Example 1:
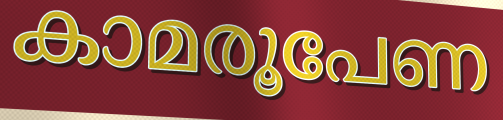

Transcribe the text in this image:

കാമരൂപേണ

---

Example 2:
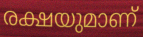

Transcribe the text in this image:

രക്ഷയുമാണ്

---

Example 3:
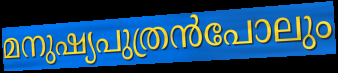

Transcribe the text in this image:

മനുഷ്യപുത്രൻപോലും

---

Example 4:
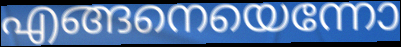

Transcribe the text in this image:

എങ്ങനെയെന്നോ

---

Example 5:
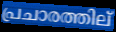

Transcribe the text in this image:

പ്രചാരത്തില്